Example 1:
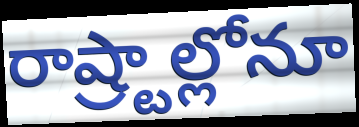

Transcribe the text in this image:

రాష్ర్టాల్లోనూ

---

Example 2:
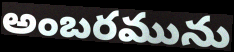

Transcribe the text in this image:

అంబరమును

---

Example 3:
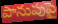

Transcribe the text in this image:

పానుపుపై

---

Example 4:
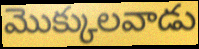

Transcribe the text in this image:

మొక్కులవాడు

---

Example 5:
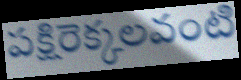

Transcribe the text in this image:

పక్షిరెక్కలవంటి